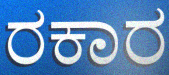
ರಕಾರ